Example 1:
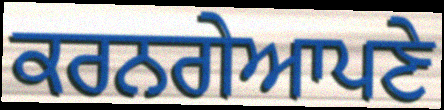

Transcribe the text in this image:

ਕਰਨਗੇਆਪਣੇ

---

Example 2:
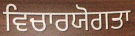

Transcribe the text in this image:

ਵਿਚਾਰਯੋਗਤਾ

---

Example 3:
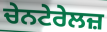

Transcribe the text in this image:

ਚੇਨਟੇਰੇਲਜ਼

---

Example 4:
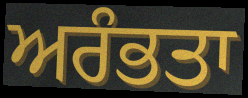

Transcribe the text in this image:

ਅਰੰਭਤਾ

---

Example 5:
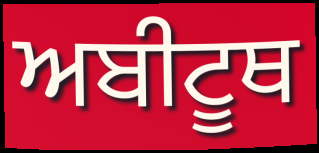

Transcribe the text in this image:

ਅਬੀਟੂਥ